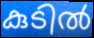
കുടിൽ